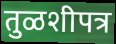
तुळशीपत्र